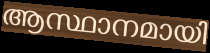
ആസ്ഥാനമായി